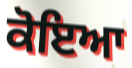
ਕੋਇਆ